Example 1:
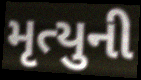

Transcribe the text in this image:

મૃત્યુની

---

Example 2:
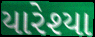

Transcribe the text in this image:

યારેશ્યા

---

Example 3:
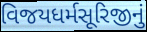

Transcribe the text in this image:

વિજયધર્મસૂરિજીનું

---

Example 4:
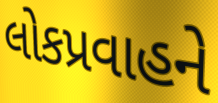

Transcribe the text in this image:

લોકપ્રવાહને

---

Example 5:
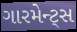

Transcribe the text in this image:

ગારમેન્ટ્સ